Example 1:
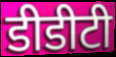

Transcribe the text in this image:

डीडीटी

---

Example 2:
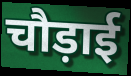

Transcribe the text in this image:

चौड़ाई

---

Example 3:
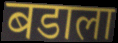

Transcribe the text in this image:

बडाला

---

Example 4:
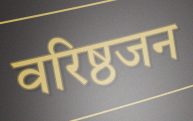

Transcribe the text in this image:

वरिष्ठजन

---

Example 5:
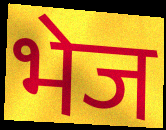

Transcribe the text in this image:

भेज